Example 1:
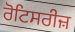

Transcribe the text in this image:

ਰੋਟਿਸਰੀਜ਼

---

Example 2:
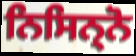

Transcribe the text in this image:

ਨਿਸਿਨ੍ਨੋ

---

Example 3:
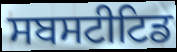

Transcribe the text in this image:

ਸਬਸਟੀਟਿਡ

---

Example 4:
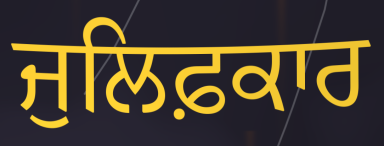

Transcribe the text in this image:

ਜੁਲਿਫ਼ਕਾਰ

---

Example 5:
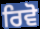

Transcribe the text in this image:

ਰਿਵੋ